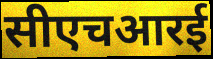
सीएचआरई